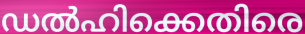
ഡൽഹിക്കെതിരെ